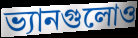
ভ্যানগুলোও